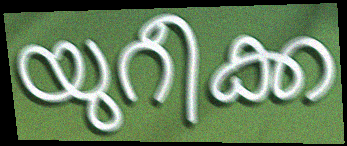
യുറീക്ക